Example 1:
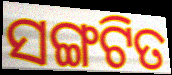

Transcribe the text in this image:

ସଙ୍ଗଟିତ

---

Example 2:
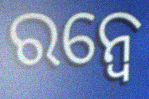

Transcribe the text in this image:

ରନ୍ୱେ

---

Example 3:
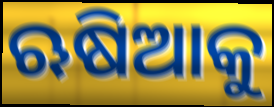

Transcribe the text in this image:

ଋଷିଆକୁ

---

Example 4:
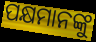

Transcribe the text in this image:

ପକ୍ଷମାନଙ୍କୁ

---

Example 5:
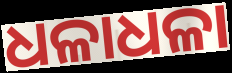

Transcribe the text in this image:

ଧଳାଧଳା